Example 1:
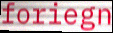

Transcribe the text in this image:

foriegn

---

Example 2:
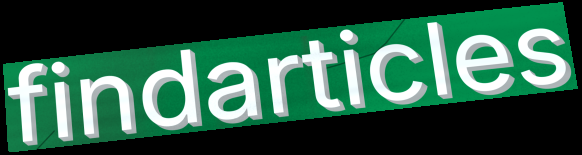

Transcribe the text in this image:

findarticles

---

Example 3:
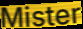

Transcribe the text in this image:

Mister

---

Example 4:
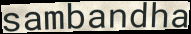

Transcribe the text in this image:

sambandha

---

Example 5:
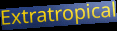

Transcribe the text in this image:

Extratropical